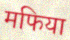
मफिया